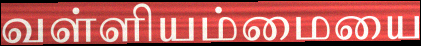
வள்ளியம்மையை